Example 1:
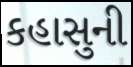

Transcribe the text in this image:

કહાસુની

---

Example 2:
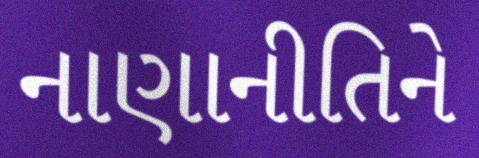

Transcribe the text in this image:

નાણાનીતિને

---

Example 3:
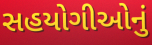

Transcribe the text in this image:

સહયોગીઓનું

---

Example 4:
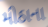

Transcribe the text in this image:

મીઠાના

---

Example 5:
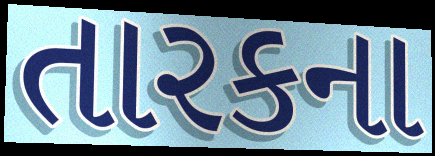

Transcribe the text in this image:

તારકના